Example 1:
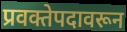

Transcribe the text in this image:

प्रवक्तेपदावरून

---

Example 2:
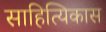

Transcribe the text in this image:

साहित्यिकास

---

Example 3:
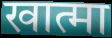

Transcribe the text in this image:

खात्मा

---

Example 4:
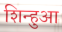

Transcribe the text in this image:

शिन्हुआ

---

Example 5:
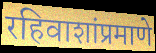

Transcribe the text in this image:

रहिवाशांप्रमाणे